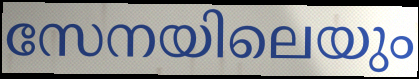
സേനയിലെയും